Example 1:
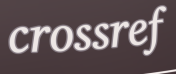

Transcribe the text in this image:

crossref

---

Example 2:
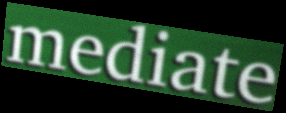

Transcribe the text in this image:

mediate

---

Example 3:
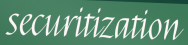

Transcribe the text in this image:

securitization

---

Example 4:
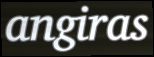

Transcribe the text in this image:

angiras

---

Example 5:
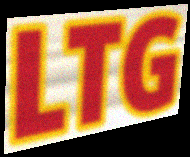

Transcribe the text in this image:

LTG